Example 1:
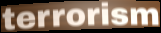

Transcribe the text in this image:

terrorism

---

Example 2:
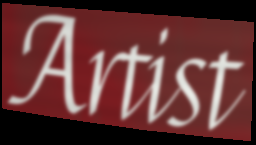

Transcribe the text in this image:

Artist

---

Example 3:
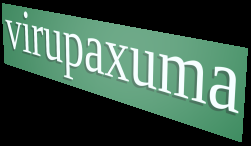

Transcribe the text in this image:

virupaxuma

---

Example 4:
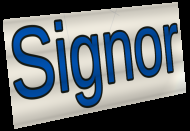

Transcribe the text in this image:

Signor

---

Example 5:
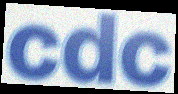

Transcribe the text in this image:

cdc